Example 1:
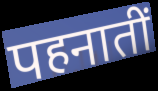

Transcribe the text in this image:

पहनातीं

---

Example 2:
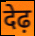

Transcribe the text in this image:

देढ़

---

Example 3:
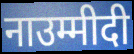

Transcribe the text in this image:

नाउम्मीदी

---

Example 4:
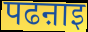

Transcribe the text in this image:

पढऩाइ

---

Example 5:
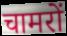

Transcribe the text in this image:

चामरों